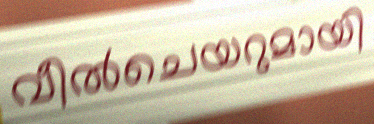
വീൽചെയറുമായി